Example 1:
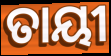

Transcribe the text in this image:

ତାୟୀ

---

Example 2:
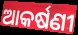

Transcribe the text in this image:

ଆକର୍ଷଣୀ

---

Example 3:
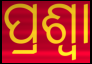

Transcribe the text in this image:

ପ୍ରଶ୍ଵା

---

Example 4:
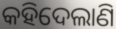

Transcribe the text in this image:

କହିଦେଲାଣି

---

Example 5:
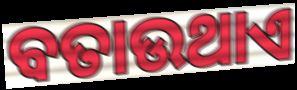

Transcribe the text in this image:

ବତାଉଥାଏ